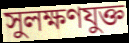
সুলক্ষণযুক্ত